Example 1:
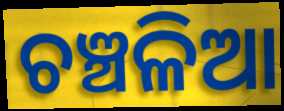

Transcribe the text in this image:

ଚଞ୍ଚଳିଆ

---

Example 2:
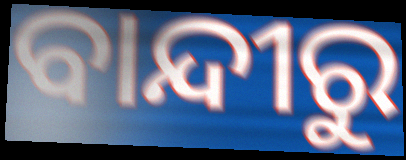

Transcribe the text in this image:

ବାନ୍ଦୀରୁ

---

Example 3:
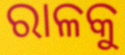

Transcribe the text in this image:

ରାଳକୁ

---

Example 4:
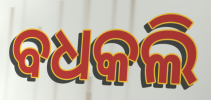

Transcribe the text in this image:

ବଧକଲି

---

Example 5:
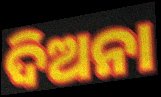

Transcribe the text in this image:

ଦିଅନା